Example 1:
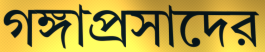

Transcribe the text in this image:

গঙ্গাপ্রসাদের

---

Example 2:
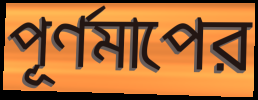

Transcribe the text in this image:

পূর্ণমাপের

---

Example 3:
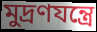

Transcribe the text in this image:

মুদ্রণযন্ত্রে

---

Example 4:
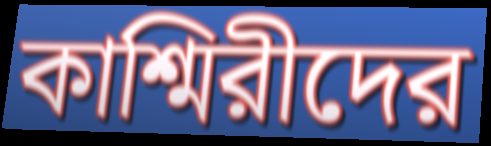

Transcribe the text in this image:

কাশ্মিরীদের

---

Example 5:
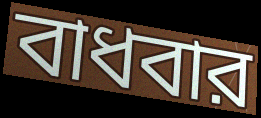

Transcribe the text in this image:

বাধবার